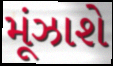
મૂંઝાશે